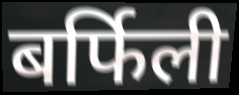
बर्फिली